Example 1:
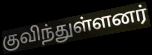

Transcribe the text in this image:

குவிந்துள்ளனர்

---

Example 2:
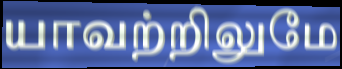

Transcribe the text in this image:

யாவற்றிலுமே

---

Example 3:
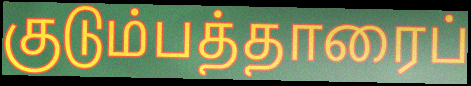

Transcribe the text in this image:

குடும்பத்தாரைப்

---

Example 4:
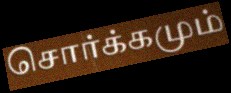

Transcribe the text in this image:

சொர்க்கமும்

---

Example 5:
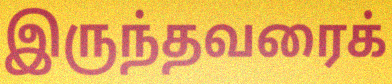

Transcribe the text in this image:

இருந்தவரைக்